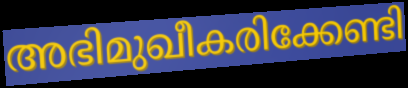
അഭിമുഖീകരിക്കേണ്ടി